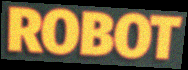
ROBOT